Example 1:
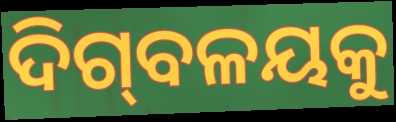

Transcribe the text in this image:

ଦିଗ୍‌ବଳୟକୁ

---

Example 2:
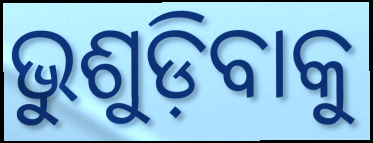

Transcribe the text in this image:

ଭୁଶୁଡ଼ିବାକୁ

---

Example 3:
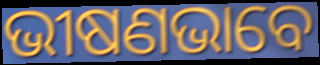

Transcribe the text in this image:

ଭୀଷଣଭାବେ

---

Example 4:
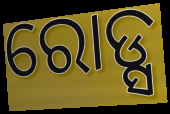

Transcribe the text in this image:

ରୋଡ୍ସ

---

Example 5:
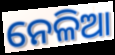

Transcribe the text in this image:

ନେଳିଆ